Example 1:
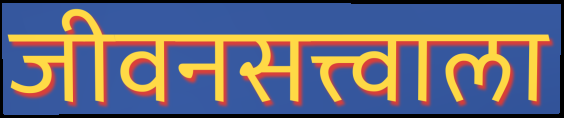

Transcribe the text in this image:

जीवनसत्त्वाला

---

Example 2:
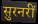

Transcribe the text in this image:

सुरनरीं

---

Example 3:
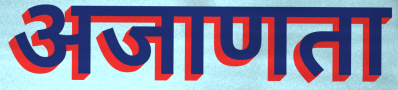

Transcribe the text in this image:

अजाणता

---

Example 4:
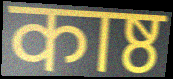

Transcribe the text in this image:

काष्ठ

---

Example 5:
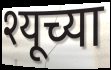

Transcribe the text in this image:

श्यूच्या